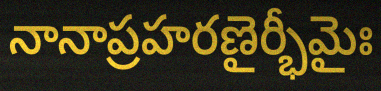
నానాప్రహరణైర్భీమైః